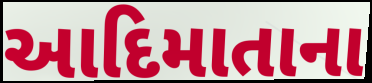
આદિમાતાના